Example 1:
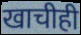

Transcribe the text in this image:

खाचीही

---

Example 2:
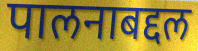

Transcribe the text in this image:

पालनाबद्दल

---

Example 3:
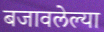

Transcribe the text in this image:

बजावलेल्या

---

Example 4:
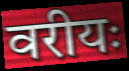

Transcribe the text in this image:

वरीयः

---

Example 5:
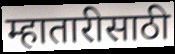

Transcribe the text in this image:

म्हातारीसाठी